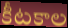
కీటకాల